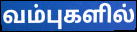
வம்புகளில்